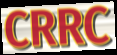
CRRC